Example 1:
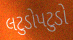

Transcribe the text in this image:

લટુડોપટુડો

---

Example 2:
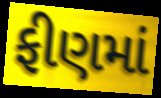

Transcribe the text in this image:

ફીણમાં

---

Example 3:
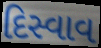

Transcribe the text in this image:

દિસ્વાવ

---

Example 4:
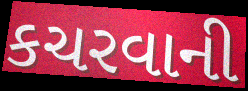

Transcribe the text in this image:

કચરવાની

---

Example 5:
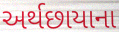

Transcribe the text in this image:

અર્થછાયાના